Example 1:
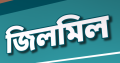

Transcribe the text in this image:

জিলমিল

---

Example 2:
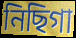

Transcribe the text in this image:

নিছিগা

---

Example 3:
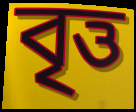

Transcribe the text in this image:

বৃত্ত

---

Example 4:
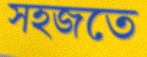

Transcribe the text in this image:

সহজতে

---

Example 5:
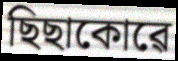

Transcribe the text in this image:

ছিছাকোৱে